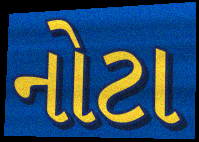
નોટા